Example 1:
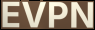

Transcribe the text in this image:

EVPN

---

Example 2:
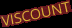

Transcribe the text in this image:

VISCOUNT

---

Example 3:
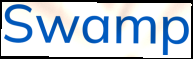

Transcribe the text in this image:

Swamp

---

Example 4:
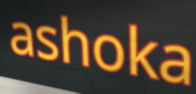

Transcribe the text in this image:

ashoka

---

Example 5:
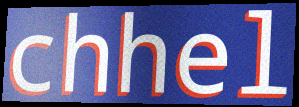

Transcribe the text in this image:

chhel